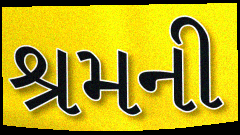
શ્રમની